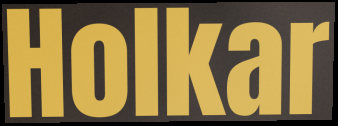
Holkar